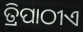
ତ୍ରିପାଠୀଏ